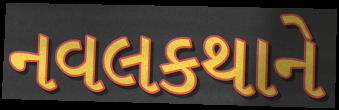
નવલકથાને